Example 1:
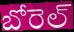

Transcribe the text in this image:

బోరెల్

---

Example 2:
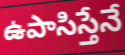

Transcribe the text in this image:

ఉపాసిస్తేనే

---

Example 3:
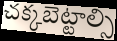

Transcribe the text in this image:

చక్కబెట్టాల్సి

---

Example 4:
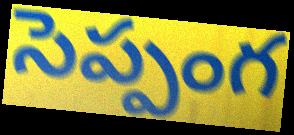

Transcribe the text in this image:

సెప్పంగ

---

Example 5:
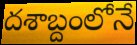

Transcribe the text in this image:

దశాబ్దంలోనే